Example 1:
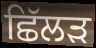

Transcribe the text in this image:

ਛਿੱਲੜ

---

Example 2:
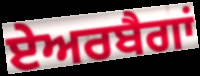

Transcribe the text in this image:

ਏਅਰਬੈਗਾਂ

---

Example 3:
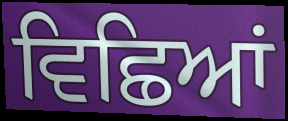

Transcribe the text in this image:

ਵਿਛਿਆਂ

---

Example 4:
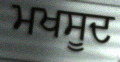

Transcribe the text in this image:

ਮਖਸੂਦ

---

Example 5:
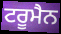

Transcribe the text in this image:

ਟਰੂਮੈਨ